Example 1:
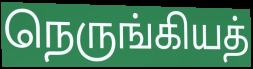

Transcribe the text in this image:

நெருங்கியத்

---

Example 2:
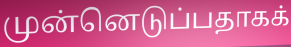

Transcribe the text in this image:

முன்னெடுப்பதாகக்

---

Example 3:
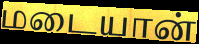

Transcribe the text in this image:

மடையான்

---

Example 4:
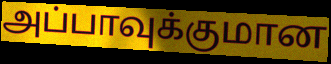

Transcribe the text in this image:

அப்பாவுக்குமான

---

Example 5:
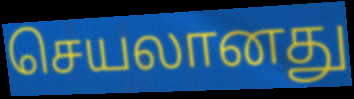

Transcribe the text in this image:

செயலானது